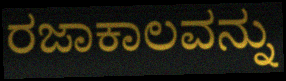
ರಜಾಕಾಲವನ್ನು